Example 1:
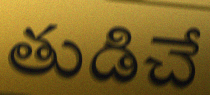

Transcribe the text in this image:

తుడిచే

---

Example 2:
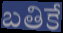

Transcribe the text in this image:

బతికే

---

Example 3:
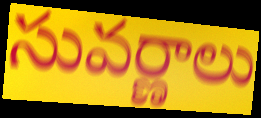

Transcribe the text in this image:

సువర్ణాలు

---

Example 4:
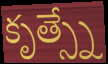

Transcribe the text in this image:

కృత్స్నే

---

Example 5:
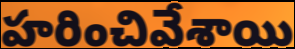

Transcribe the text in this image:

హరించివేశాయి